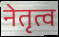
नेतृत्‍व